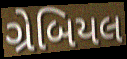
ગ્રેબિયલ